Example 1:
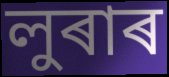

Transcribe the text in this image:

লুৰাৰ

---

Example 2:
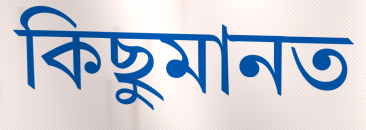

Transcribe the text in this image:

কিছুমানত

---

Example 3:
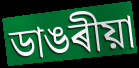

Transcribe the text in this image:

ডাঙৰীয়া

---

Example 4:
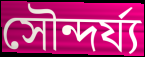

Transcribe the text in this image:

সৌন্দৰ্য্য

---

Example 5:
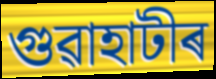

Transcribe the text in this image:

গুৱাহাটীৰ